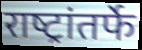
राष्ट्रांतर्फे